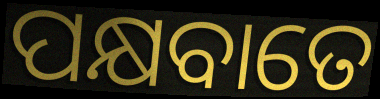
ପକ୍ଷବାତେ